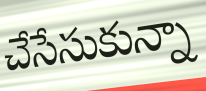
చేసేసుకున్నా